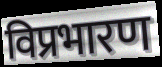
विप्रभारण